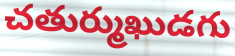
చతుర్ముఖుడగు